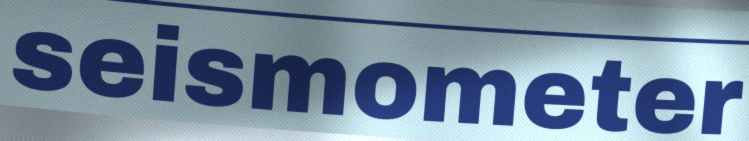
seismometer